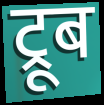
ट्रूब